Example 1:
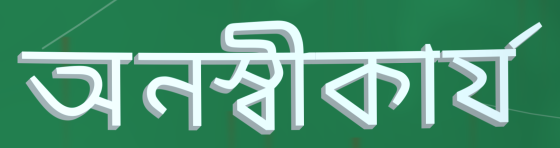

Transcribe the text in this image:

অনস্বীকাৰ্য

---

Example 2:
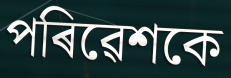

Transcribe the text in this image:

পৰিৱেশকে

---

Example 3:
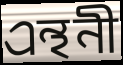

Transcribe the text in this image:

এন্থনী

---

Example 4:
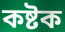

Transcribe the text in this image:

কষ্টক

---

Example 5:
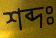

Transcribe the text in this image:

শব্দঃ